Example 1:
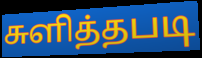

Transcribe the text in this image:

சுளித்தபடி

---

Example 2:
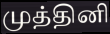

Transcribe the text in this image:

முத்தினி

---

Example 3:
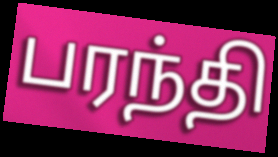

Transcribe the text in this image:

பரந்தி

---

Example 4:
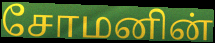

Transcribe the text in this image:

சோமனின்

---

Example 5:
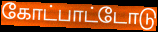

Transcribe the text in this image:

கோட்பாட்டோடு